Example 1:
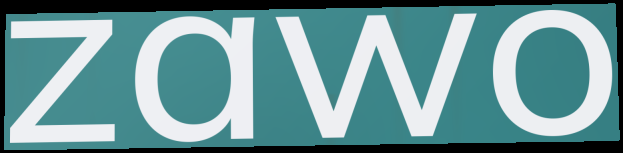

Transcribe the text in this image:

zawo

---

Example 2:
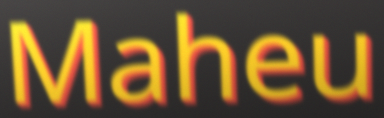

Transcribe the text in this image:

Maheu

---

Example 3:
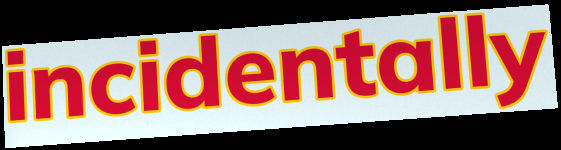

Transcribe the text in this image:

incidentally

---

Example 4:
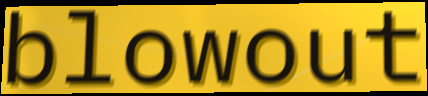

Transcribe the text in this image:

blowout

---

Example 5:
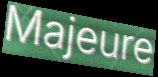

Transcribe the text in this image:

Majeure